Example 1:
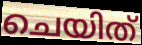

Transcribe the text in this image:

ചെയിത്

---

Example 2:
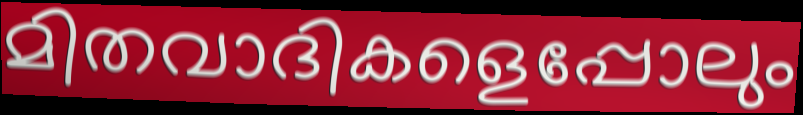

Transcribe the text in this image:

മിതവാദികളെപ്പോലും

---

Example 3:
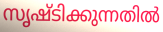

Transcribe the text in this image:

സൃഷ്ടിക്കുന്നതിൽ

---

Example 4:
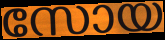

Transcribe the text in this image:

സോയ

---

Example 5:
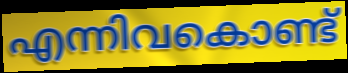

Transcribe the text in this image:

എന്നിവകൊണ്ട്